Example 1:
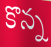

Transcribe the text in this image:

కొన్న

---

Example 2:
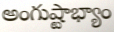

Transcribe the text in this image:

అంగుష్టాభ్యాం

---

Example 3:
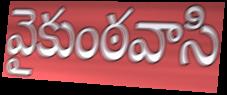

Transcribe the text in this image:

వైకుంఠవాసి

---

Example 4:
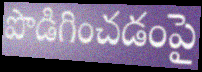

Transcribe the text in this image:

పొడిగించడంపై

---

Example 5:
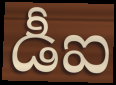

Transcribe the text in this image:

డీఐ